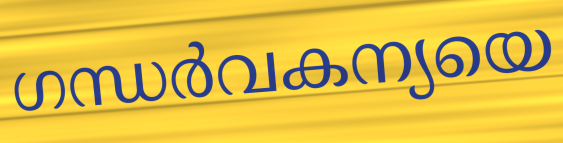
ഗന്ധർവകന്യയെ